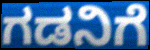
ಗಡನಿಗೆ